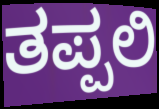
ತಪ್ಪಲಿ